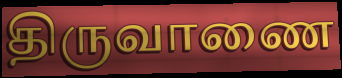
திருவாணை